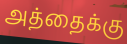
அத்தைக்கு